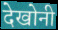
देखोनी